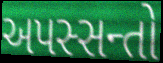
અપસ્સન્તો